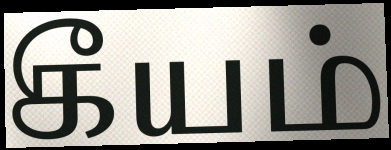
கீயம்